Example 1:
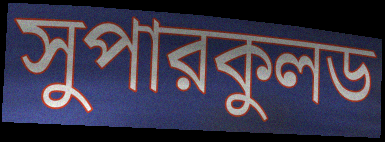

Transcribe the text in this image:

সুপারকুলড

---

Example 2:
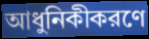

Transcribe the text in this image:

আধুনিকীকরণে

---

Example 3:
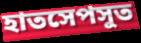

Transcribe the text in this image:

হাতসেপসুত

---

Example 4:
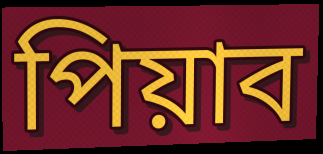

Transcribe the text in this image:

পিয়াব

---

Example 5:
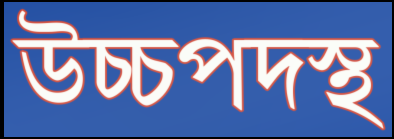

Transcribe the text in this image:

উচ্চপদস্থ